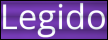
Legido